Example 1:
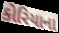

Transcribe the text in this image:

કોરિયાના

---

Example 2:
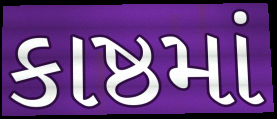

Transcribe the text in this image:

કાષ્ઠમાં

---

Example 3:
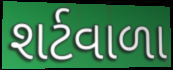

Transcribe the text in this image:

શર્ટવાળા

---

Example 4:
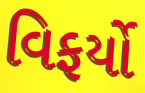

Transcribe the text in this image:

વિફર્યો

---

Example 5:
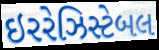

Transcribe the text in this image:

ઇરરેઝિસ્ટેબલ